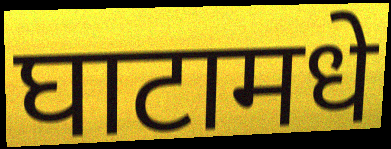
घाटामधे